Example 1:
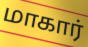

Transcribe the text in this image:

மாகார்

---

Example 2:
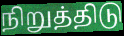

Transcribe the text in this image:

நிறுத்திடு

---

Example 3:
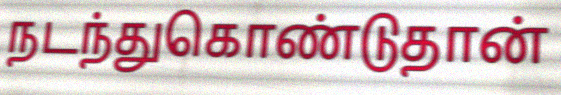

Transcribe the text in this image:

நடந்துகொண்டுதான்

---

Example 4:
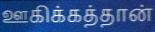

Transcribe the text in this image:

ஊகிக்கத்தான்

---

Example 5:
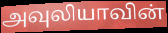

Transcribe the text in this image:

அவுலியாவின்